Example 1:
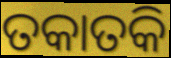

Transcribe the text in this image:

ତକାତକି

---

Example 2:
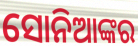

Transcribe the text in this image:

ସୋନିଆଙ୍କର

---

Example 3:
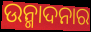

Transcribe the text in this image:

ଉନ୍ମାଦନାର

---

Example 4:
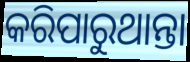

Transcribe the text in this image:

କରିପାରୁଥାନ୍ତା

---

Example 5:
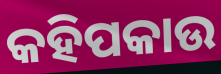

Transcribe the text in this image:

କହିପକାଉ